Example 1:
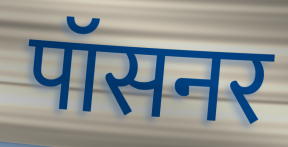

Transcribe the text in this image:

पॉसनर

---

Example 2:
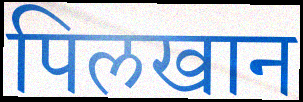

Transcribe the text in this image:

पिलखान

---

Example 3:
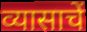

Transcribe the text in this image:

व्यासाचें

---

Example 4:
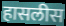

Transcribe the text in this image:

हासलीस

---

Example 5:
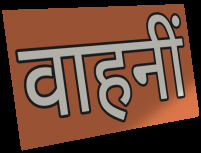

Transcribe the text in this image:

वाहनीं